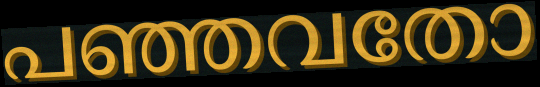
പഞ്ഞവതോ